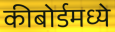
कीबोर्डमध्ये